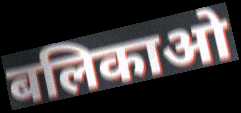
बलिकाओ